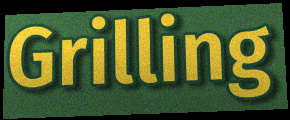
Grilling